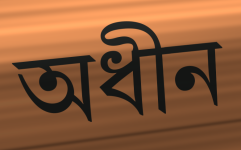
অধীন